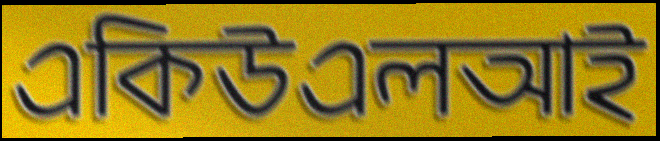
একিউএলআই